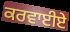
ਕਰਵਾਈਏ